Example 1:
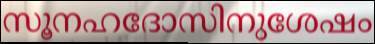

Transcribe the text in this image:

സൂനഹദോസിനുശേഷം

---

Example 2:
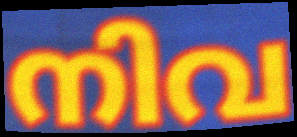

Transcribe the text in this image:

നിവ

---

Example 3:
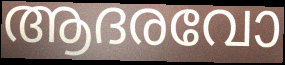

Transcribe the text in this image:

ആദരവോ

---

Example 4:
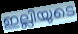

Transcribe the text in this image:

ഇല്ലിയുടെ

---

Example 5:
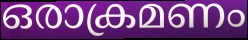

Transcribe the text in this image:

ഒരാക്രമണം